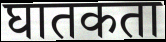
घातकता